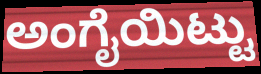
ಅಂಗೈಯಿಟ್ಟು